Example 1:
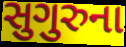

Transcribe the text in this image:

સુગુરુના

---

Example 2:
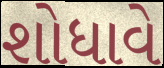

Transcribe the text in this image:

શોધાવે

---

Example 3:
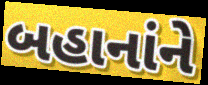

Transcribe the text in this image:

બહાનાંને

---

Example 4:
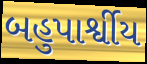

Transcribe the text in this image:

બહુપાર્શ્વીય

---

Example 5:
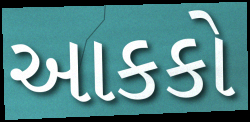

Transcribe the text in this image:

આકકો